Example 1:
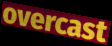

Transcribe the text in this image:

overcast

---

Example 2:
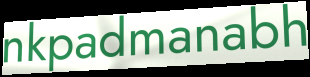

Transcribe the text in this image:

nkpadmanabh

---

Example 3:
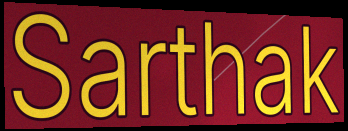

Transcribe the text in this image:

Sarthak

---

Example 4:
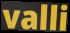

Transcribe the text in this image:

valli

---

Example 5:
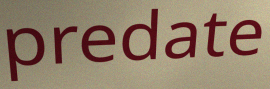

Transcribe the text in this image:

predate